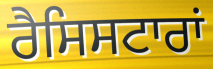
ਰੈਸਿਸਟਾਰਾਂ